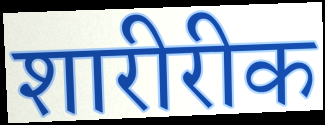
शारीरीक